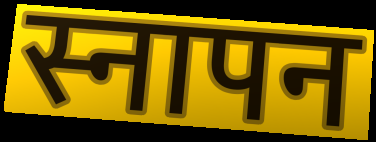
स्नापन